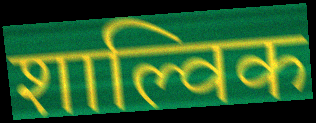
शाल्विक